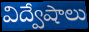
విద్వేషాలు